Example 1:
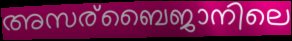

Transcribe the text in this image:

അസര്ബൈജാനിലെ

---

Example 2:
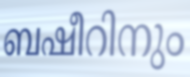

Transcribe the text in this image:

ബഷീറിനും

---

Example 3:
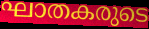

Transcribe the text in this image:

ഘാതകരുടെ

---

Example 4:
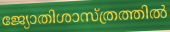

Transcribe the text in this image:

ജ്യോതിശാസ്ത്രത്തിൽ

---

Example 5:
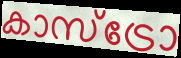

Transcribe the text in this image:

കാസ്ട്രോ